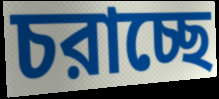
চরাচ্ছে